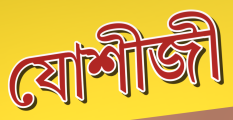
যোশীজী